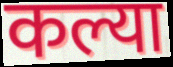
कल्या